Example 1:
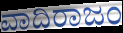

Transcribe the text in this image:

ವಾದಿರಾಜಂ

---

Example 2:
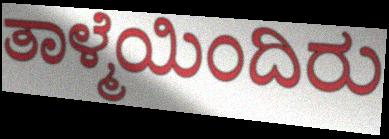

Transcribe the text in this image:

ತಾಳ್ಮೆಯಿಂದಿರು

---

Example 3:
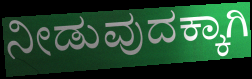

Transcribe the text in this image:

ನೀಡುವುದಕ್ಕಾಗಿ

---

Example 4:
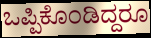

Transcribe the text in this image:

ಒಪ್ಪಿಕೊಂಡಿದ್ದರೂ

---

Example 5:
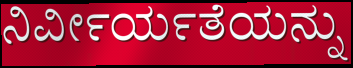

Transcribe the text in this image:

ನಿರ್ವೀರ್ಯತೆಯನ್ನು